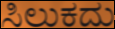
ಸಿಲುಕದು